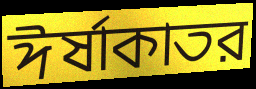
ঈর্ষাকাতর